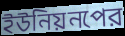
ইউনিয়নপের